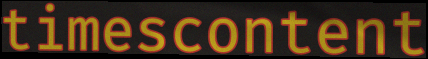
timescontent